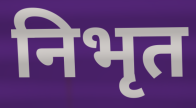
निभृत